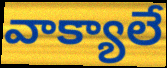
వాక్యాలే